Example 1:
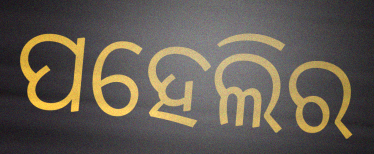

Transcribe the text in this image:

ପହେଲିର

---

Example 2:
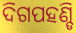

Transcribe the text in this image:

ଦିଗପହଣ୍ଡି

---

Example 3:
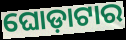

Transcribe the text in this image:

ଘୋଡ଼ାଟାର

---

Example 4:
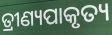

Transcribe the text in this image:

ତ୍ରୀଣ୍ୟପାକୃତ୍ୟ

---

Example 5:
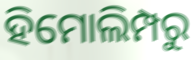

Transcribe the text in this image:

ହିମୋଲିମ୍ପରୁ